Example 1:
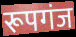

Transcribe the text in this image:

रूपगंज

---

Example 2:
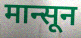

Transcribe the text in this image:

मान्सून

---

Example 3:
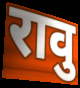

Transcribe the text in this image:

रावु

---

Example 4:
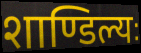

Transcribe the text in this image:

शाण्डिल्यः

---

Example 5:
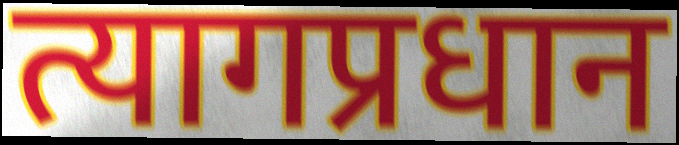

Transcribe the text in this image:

त्यागप्रधान